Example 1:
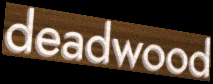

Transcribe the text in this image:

deadwood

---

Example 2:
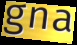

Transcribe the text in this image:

gna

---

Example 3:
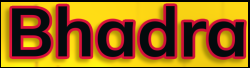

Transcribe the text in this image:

Bhadra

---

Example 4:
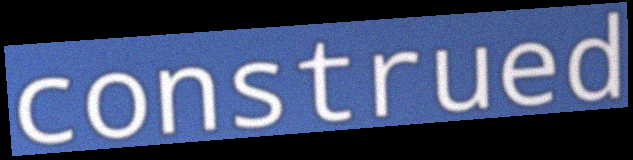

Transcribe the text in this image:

construed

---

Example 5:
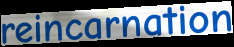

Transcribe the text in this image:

reincarnation